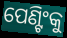
ପେଣ୍ଟିଂକୁ